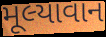
મૂલ્યાવાન